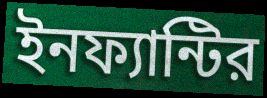
ইনফ্যান্টির